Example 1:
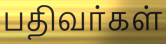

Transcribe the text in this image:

பதிவர்கள்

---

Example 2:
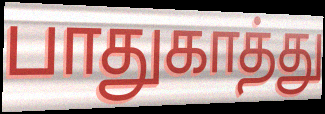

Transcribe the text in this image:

பாதுகாத்து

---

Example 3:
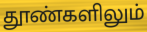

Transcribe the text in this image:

தூண்களிலும்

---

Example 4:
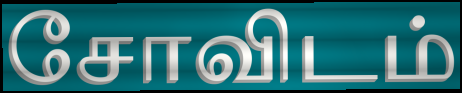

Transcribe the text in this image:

சோவிடம்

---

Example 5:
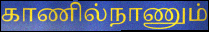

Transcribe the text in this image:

காணில்நாணும்